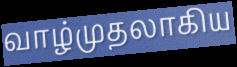
வாழ்முதலாகிய